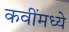
कवींमध्ये